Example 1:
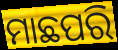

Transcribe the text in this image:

ମାଛପରି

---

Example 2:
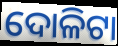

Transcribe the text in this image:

ଦୋଳିଟା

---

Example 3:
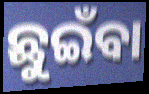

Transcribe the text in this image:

ଛୁଇଁବା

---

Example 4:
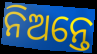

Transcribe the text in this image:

ନିଅନ୍ତେ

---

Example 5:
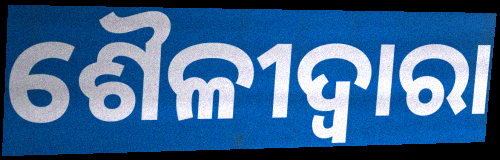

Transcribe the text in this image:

ଶୈଳୀଦ୍ୱାରା